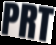
PRT